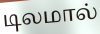
டிலமால்